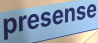
presense